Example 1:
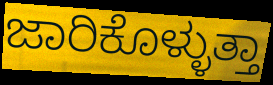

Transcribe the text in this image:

ಜಾರಿಕೊಳ್ಳುತ್ತಾ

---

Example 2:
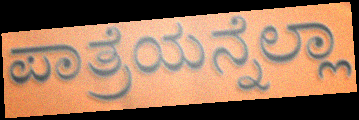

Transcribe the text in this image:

ಪಾತ್ರೆಯನ್ನೆಲ್ಲಾ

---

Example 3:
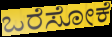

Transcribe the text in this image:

ಒರೆಸೋಕೆ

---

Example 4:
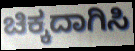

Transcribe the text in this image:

ಚಿಕ್ಕದಾಗಿಸಿ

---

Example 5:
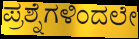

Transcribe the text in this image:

ಪ್ರಶ್ನೆಗಳಿಂದಲೇ